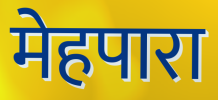
मेहपारा